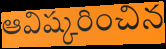
ఆవిష్కరించిన